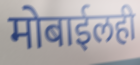
मोबाईलही